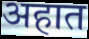
अहात